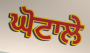
ਘੋਟਾਲੇ